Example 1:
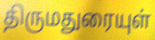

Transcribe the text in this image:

திருமதுரையுள்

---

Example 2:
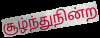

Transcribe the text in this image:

சூழ்ந்துநின்ற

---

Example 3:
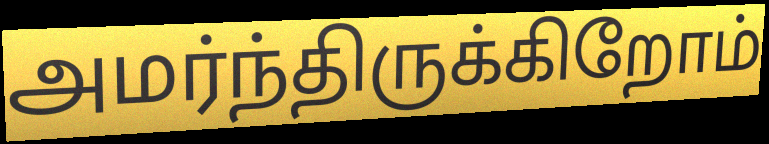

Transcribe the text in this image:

அமர்ந்திருக்கிறோம்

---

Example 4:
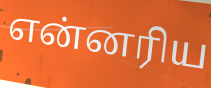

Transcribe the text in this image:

என்னரிய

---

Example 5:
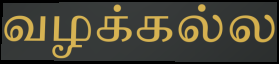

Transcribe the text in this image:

வழக்கல்ல